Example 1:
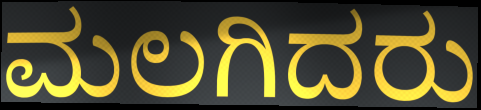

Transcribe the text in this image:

ಮಲಗಿದರು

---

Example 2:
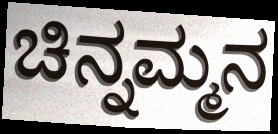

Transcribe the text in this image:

ಚಿನ್ನಮ್ಮನ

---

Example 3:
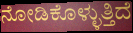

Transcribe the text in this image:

ನೋಡಿಕೊಳ್ಳುತ್ತಿದೆ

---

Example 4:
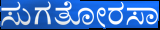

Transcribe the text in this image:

ಸುಗತೋರಸಾ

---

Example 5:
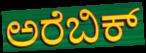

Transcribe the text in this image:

ಅರೆಬಿಕ್